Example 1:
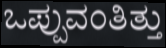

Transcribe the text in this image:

ಒಪ್ಪುವಂತಿತ್ತು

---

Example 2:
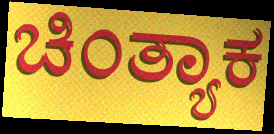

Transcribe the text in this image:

ಚಿಂತ್ಯಾಕ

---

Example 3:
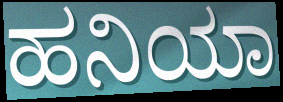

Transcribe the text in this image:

ಹನಿಯಾ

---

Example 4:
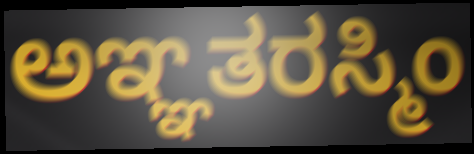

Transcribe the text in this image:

ಅಞ್ಞತರಸ್ಮಿಂ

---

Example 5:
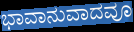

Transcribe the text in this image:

ಭಾವಾನುವಾದವೂ